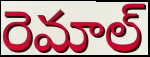
రెమాల్